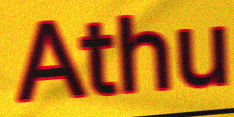
Athu